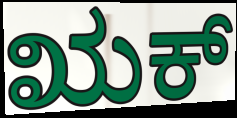
ಋಕ್